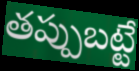
తప్పుబట్టే